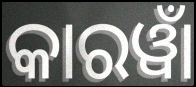
କାରୱାଁ